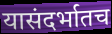
यासंदर्भातच